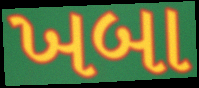
ખબા